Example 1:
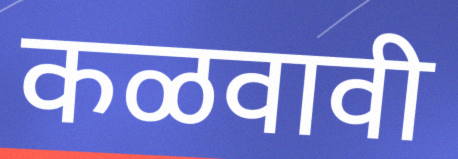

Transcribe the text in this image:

कळवावी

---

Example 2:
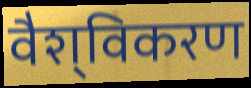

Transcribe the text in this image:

वैश्विकरण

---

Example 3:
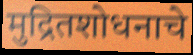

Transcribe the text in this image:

मुद्रितशोधनाचे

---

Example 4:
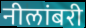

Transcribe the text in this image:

नीलांबरी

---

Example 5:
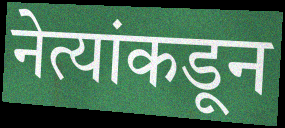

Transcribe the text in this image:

नेत्यांकडून